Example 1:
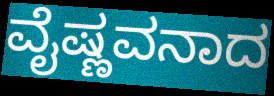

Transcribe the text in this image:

ವೈಷ್ಣವನಾದ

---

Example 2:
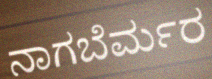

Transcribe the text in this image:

ನಾಗಬೆರ್ಮರ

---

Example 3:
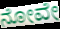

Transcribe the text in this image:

ನೋವೇ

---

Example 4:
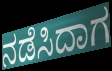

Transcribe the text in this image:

ನಡೆಸಿದಾಗ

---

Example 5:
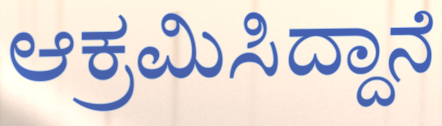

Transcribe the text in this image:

ಆಕ್ರಮಿಸಿದ್ದಾನೆ